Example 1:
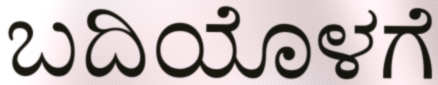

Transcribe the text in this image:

ಬದಿಯೊಳಗೆ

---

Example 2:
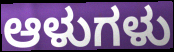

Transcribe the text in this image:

ಆಳುಗಳು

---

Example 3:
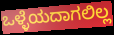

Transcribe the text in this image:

ಒಳ್ಳೆಯದಾಗಲಿಲ್ಲ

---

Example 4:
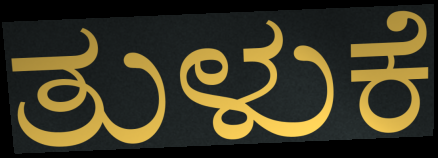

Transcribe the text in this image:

ತುಳುಕೆ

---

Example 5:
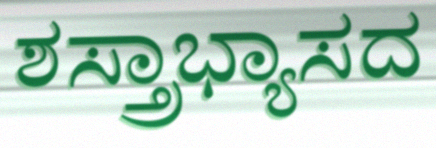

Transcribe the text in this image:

ಶಸ್ತ್ರಾಭ್ಯಾಸದ